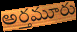
అర్తమూరు